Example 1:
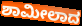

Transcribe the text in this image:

ಶಾಮೀಲಾದ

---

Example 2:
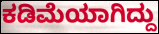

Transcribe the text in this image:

ಕಡಿಮೆಯಾಗಿದ್ದು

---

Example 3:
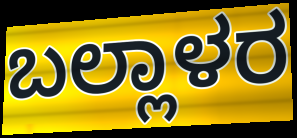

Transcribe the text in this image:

ಬಲ್ಲಾಳರ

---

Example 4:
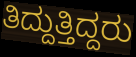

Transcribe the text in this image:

ತಿದ್ದುತ್ತಿದ್ದರು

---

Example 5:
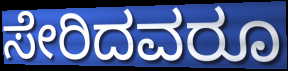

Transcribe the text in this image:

ಸೇರಿದವರೂ